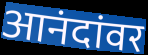
आनंदांवर